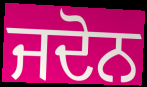
ਜਦੋਨ